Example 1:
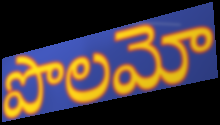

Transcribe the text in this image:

పొలమో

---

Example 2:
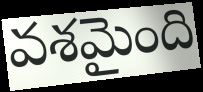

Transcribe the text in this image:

వశమైంది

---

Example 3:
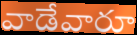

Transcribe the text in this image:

వాడేవారూ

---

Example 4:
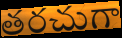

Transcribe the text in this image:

తరచుగా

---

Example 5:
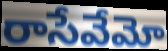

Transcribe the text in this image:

రాసేవేమో